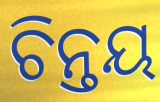
ଚିନ୍ତୟ